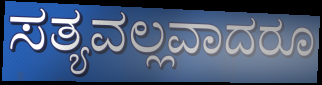
ಸತ್ಯವಲ್ಲವಾದರೂ